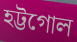
হট্টগোল